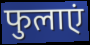
फुलाएं